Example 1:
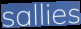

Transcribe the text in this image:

sallies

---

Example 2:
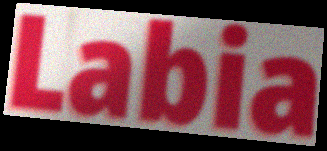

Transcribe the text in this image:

Labia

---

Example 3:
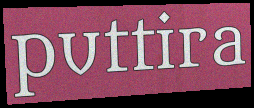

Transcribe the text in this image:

puttira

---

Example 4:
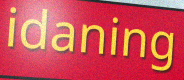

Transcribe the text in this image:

idaning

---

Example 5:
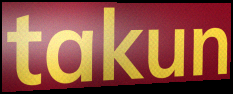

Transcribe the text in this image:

takun